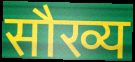
सौख्य